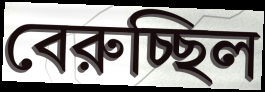
বেরুচ্ছিল